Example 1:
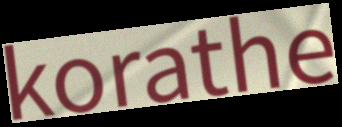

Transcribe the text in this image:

korathe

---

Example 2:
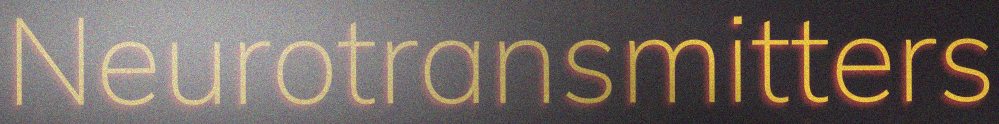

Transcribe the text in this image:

Neurotransmitters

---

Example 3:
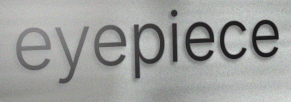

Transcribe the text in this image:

eyepiece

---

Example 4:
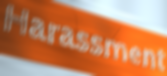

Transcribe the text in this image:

Harassment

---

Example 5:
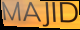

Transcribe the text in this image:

MAJID